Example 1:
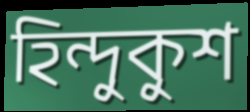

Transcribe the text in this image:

হিন্দুকুশ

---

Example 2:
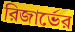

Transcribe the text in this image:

রিজার্ভের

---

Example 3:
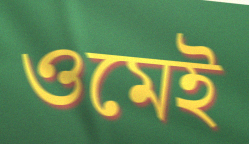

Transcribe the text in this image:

ওমেই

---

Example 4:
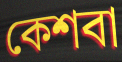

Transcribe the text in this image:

কেশবা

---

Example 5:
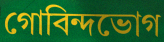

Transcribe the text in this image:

গোবিন্দভোগ